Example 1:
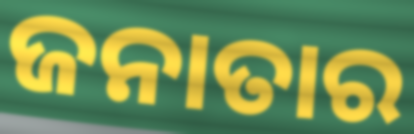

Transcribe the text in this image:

ଜନାତାର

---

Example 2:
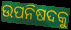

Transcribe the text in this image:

ଉପନିଷଦକୁ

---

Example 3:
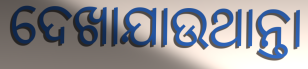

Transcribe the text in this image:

ଦେଖାଯାଉଥାନ୍ତା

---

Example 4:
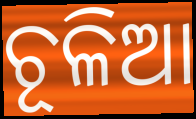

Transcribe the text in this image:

ଚୂଳିଆ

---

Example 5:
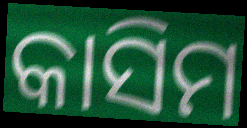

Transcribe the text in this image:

କାସିମ